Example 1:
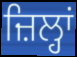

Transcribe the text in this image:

ਜ਼ਿਲ੍ਹਾਂ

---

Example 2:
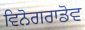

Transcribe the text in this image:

ਵਿਨੋਗਰਾਡੋਵ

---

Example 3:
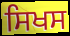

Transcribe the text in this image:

ਸਿਖਸ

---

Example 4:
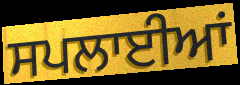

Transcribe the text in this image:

ਸਪਲਾਈਆਂ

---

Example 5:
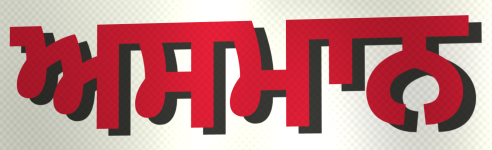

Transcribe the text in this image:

ਅਸਮਾਨ